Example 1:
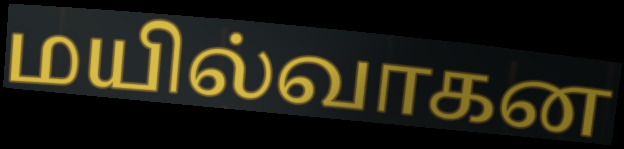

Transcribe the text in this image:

மயில்வாகன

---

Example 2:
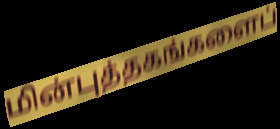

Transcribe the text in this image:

மின்புத்தகங்களைப்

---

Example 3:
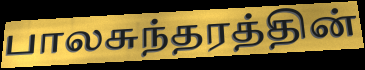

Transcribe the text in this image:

பாலசுந்தரத்தின்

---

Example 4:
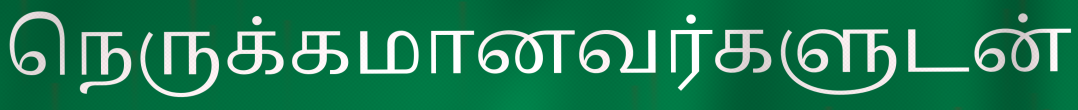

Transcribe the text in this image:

நெருக்கமானவர்களுடன்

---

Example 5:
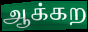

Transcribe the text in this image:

ஆக்கற